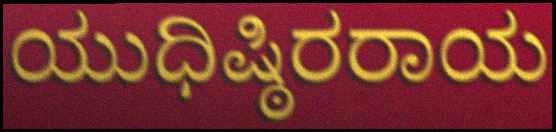
ಯುಧಿಷ್ಠಿರರಾಯ